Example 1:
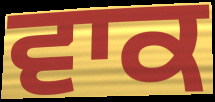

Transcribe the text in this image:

ਵਾਕ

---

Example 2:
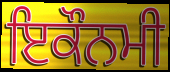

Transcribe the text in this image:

ਇਕੌਨਮੀ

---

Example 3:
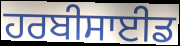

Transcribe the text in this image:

ਹਰਬੀਸਾਈਡ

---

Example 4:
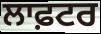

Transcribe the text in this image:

ਲਾਫ਼ਟਰ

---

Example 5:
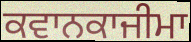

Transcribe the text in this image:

ਕਵਾਨਕਾਜੀਮਾ